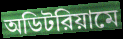
অডিটরিয়ামে